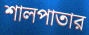
শালপাতার